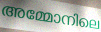
അമ്മോനിലെ